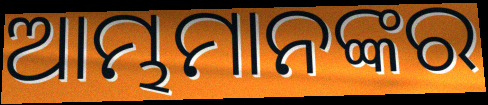
ଆମ୍ଭମାନଙ୍କର